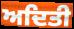
ਅਦਿਤੀ